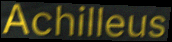
Achilleus